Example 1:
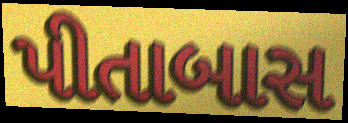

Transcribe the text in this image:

પીતાબાસ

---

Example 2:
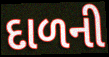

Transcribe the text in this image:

દાળની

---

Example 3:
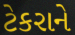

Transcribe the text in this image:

ટેકરાને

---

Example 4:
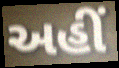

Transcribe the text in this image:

અહીઁ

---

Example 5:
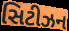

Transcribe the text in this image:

સિટીઝન